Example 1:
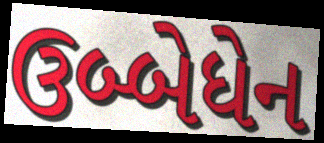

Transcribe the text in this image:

ઉબ્બેધેન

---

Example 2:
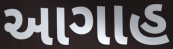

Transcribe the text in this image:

આગાહ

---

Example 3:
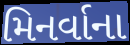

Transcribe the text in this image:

મિનર્વાના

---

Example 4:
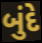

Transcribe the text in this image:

બુંદે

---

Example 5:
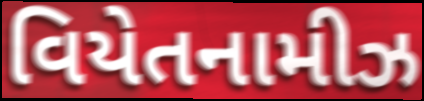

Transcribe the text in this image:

વિયેતનામીઝ